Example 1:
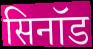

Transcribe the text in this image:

सिनॉड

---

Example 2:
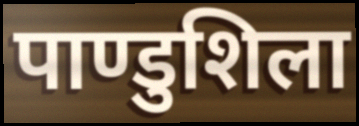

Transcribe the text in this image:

पाण्डुशिला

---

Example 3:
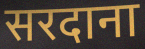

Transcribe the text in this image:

सरदाना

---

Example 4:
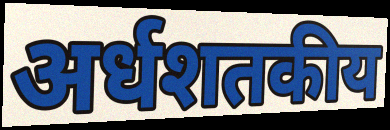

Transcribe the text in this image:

अर्धशतकीय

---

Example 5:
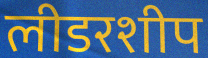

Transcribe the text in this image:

लीडरशीप